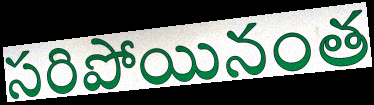
సరిపోయినంత